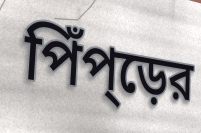
পিঁপ্ড়ের